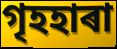
গৃহহাৰা